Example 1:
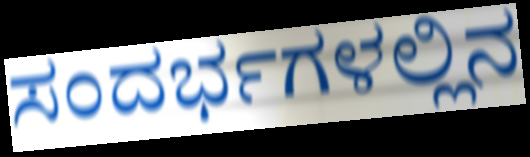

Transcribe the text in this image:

ಸಂದರ್ಭಗಳಲ್ಲಿನ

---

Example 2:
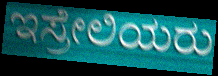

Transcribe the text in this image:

ಇಸ್ರೇಲಿಯರು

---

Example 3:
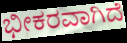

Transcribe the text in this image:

ಭೀಕರವಾಗಿದೆ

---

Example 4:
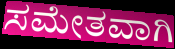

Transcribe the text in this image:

ಸಮೇತವಾಗಿ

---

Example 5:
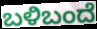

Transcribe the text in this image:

ಬಳಿಬಂದೆ